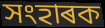
সংহাৰক